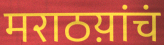
मराठय़ांचं